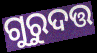
ଗୁରୁଦତ୍ତ